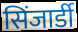
सिंजार्डी